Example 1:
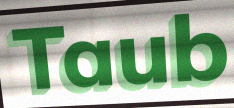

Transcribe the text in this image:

Taub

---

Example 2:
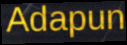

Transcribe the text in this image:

Adapun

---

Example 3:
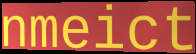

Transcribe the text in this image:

nmeict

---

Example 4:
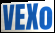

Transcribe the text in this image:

VEXo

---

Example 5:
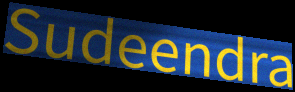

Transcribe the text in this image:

Sudeendra